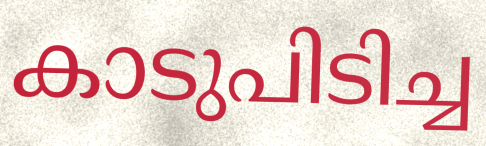
കാടുപിടിച്ച